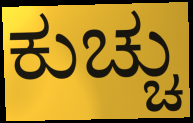
ಕುಚ್ಚು